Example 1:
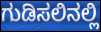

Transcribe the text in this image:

ಗುಡಿಸಲಿನಲ್ಲಿ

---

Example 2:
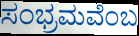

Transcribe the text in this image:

ಸಂಭ್ರಮವೆಂಬ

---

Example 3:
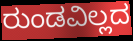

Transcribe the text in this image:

ರುಂಡವಿಲ್ಲದ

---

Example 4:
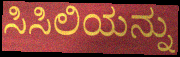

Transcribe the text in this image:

ಸಿಸಿಲಿಯನ್ನು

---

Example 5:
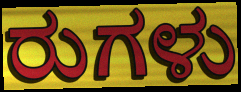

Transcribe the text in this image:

ರುಗಳು